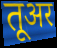
तूअर